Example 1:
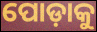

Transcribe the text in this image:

ପୋଡ଼ାକୁ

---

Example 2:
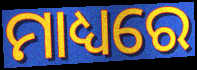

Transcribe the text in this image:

ମାଧ୍ୟରେ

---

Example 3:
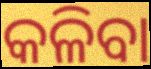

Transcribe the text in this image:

କଳିବା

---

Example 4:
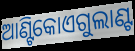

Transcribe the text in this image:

ଆଣ୍ଟିକୋଏଗୁଲାଣ୍ଟ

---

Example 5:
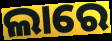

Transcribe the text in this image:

ଲାରେ